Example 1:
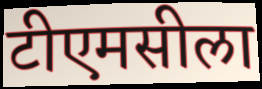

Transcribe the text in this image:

टीएमसीला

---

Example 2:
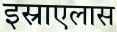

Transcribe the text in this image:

इस्राएलास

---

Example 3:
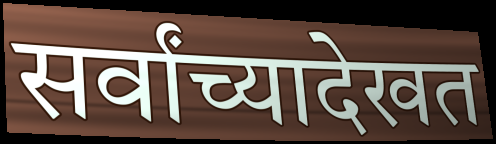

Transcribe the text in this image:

सर्वांच्यादेखत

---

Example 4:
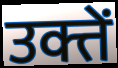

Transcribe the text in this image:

उक्तें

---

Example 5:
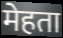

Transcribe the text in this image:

मेहता